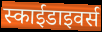
स्काईडाइवर्स